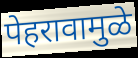
पेहरावामुळे